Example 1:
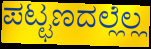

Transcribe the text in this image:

ಪಟ್ಟಣದಲ್ಲೆಲ್ಲ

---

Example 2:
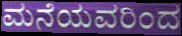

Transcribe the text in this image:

ಮನೆಯವರಿಂದ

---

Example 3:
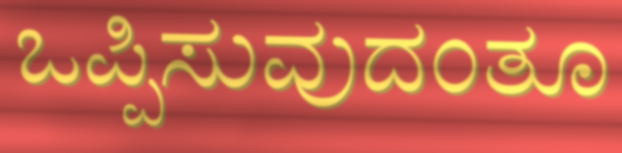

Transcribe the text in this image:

ಒಪ್ಪಿಸುವುದಂತೂ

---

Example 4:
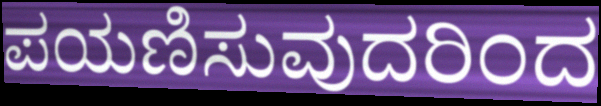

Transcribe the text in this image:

ಪಯಣಿಸುವುದರಿಂದ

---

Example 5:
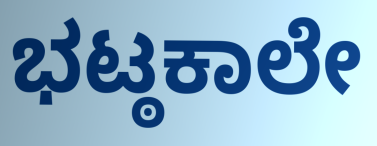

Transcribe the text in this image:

ಭಟ್ಠಕಾಲೇ